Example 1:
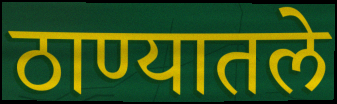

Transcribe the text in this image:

ठाण्यातले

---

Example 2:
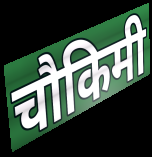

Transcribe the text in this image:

चौकिमी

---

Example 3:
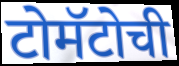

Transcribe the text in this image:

टोमॅटोची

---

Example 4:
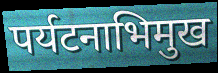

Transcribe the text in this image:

पर्यटनाभिमुख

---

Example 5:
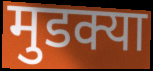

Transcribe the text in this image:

मुडक्या